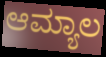
ಆಮ್ಯಾಲ